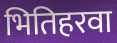
भितिहरवा